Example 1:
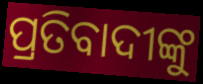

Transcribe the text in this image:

ପ୍ରତିବାଦୀଙ୍କୁ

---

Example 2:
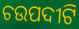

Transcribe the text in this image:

ଚଉପଦୀଟି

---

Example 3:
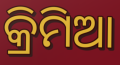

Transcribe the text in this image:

କ୍ରିମିଆ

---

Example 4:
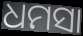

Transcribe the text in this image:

ଧମସା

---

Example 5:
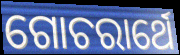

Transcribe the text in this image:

ଗୋଚରାର୍ଥେ